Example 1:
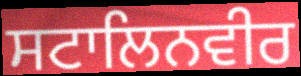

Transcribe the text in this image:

ਸਟਾਲਿਨਵੀਰ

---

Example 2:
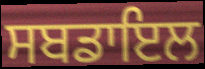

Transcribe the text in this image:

ਸਬਡਾਇਲ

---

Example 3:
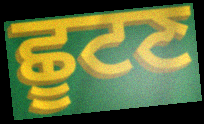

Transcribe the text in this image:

ਛੂਟਣ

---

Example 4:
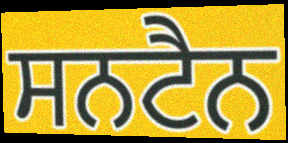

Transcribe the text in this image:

ਸਨਟੈਨ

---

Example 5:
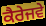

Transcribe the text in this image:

ਕੈਰੇਜਵੇ